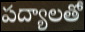
పద్యాలతో